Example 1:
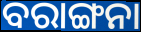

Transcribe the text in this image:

ବରାଙ୍ଗନା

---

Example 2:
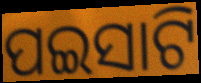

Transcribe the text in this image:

ପଇସାଟି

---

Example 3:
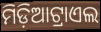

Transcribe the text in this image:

ମିଡ଼ିଆଟ୍ରାଏଲ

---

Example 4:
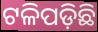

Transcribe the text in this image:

ଟଳିପଡ଼ିଛି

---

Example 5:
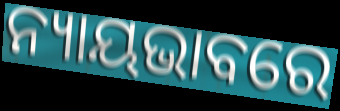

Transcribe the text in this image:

ନ୍ୟାୟଭାବରେ